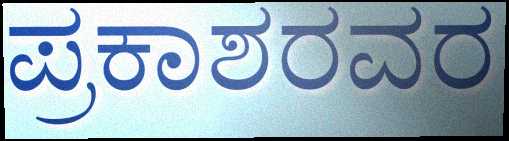
ಪ್ರಕಾಶರವರ